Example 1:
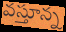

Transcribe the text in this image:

వస్తూన్న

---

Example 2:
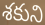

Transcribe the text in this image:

శకుని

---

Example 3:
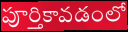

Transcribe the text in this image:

పూర్తికావడంలో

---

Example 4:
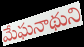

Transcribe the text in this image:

మేఘనాథుని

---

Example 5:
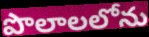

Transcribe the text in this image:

పొలాలలోను